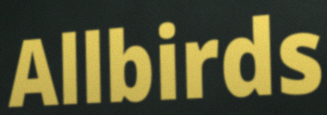
Allbirds